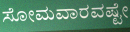
ಸೋಮವಾರವಷ್ಟೇ